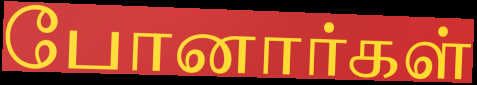
போனார்கள்